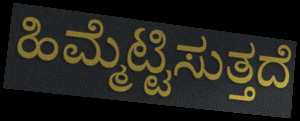
ಹಿಮ್ಮೆಟ್ಟಿಸುತ್ತದೆ